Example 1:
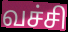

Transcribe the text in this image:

வச்சி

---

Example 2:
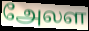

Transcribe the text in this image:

அேலள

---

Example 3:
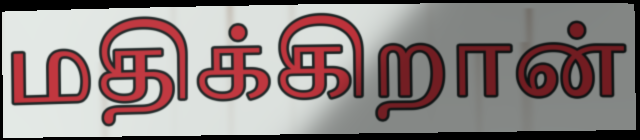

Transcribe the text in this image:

மதிக்கிறான்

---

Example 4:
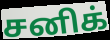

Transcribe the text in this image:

சனிக்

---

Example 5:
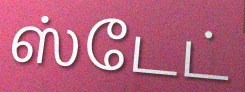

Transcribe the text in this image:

ஸ்டேட்